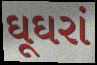
ઘૂઘરાં